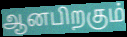
ஆனபிறகும்